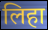
लिहा